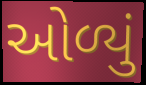
ઓળ્યું